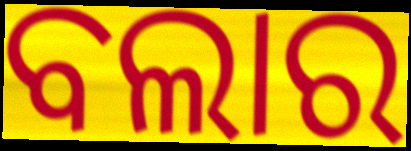
ବଲାର